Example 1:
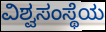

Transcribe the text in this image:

ವಿಶ್ವಸಂಸ್ಥೆಯ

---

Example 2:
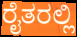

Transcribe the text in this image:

ರೈತರಲ್ಲಿ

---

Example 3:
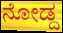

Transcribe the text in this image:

ನೋಡ್ದ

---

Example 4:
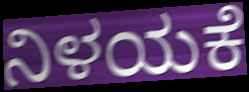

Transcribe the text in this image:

ನಿಳಯಕೆ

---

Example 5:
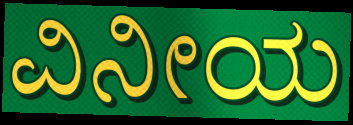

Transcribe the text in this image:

ವಿನೀಯ